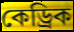
কেড্রিক